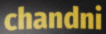
chandni